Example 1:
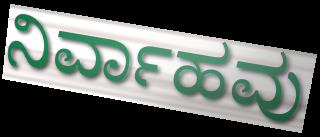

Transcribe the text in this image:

ನಿರ್ವಾಹವು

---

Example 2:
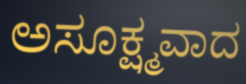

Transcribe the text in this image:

ಅಸೂಕ್ಷ್ಮವಾದ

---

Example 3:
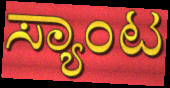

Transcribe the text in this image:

ಸ್ಯಾಂಟ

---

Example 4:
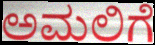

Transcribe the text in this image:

ಅಮಲಿಗೆ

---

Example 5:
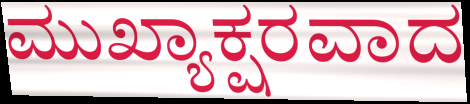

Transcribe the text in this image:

ಮುಖ್ಯಾಕ್ಷರವಾದ